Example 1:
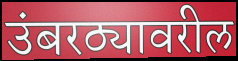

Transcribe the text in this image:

उंबरठ्यावरील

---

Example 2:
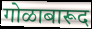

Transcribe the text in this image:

गोळाबारूद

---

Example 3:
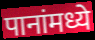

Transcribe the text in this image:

पानांमध्ये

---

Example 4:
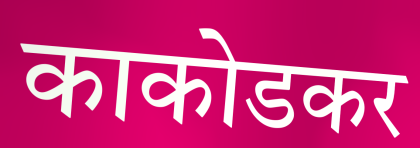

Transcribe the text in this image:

काकोडकर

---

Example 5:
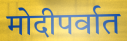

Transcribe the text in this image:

मोदीपर्वात